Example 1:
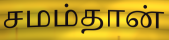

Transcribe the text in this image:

சமம்தான்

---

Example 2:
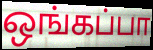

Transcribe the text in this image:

ஒங்கப்பா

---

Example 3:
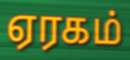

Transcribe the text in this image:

ஏரகம்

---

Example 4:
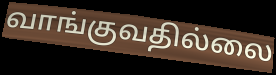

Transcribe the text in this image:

வாங்குவதில்லை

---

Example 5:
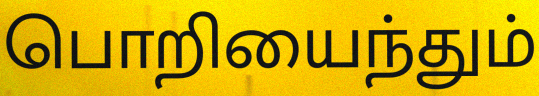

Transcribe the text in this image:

பொறியைந்தும்